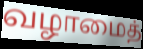
வழாமைத்